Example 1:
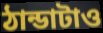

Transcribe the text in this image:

ঠান্ডাটাও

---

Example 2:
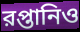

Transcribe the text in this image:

রপ্তানিও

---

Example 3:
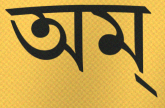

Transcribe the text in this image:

অম্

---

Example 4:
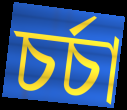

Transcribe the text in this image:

চর্চা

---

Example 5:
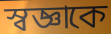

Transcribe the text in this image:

স্বজ্ঞাকে